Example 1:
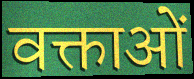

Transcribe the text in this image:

वक्ताओें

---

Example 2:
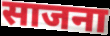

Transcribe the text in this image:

साजना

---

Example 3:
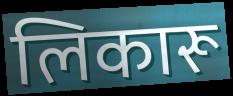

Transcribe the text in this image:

लिकारू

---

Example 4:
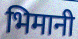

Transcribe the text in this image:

भिमानी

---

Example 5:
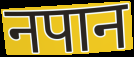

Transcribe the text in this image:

नपान